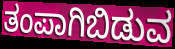
ತಂಪಾಗಿಬಿಡುವ